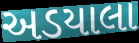
અડયાલા